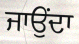
ਜਾਉਂਦਾ